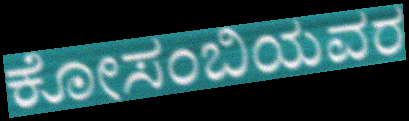
ಕೋಸಂಬಿಯವರ